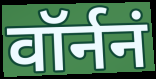
वॉर्ननं